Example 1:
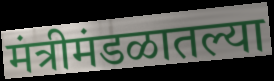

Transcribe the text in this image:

मंत्रीमंडळातल्या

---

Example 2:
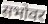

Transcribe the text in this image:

सभोवर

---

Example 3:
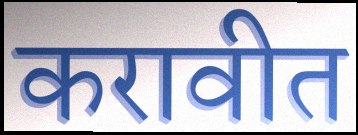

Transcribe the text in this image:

करावीत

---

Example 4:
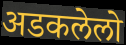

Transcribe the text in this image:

अडकलेलो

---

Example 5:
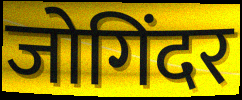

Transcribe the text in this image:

जोगिंदर